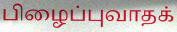
பிழைப்புவாதக்